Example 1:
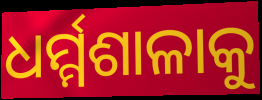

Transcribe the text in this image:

ଧର୍ମ୍ମଶାଳାକୁ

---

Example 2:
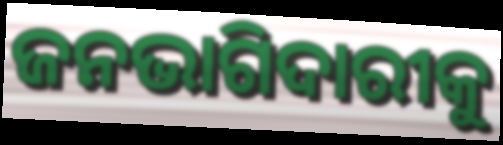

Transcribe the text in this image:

ଜନଭାଗିଦାରୀକୁ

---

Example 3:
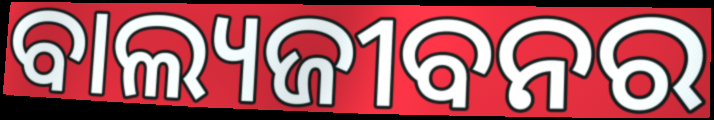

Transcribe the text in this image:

ବାଲ୍ୟଜୀବନର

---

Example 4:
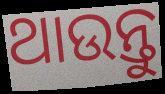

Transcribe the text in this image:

ଥାଉନ୍ତୁ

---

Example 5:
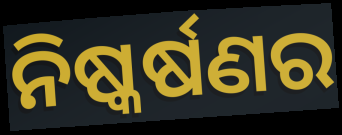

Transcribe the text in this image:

ନିଷ୍କର୍ଷଣର